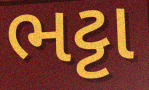
ભટ્ટા